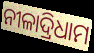
ନୀଳାଦ୍ରିଧାମ